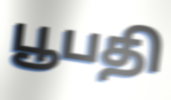
பூபதி